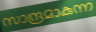
സാന്ദ്രമാകുന്ന